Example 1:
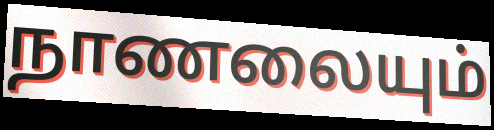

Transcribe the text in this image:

நாணலையும்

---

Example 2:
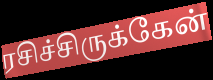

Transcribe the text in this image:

ரசிச்சிருக்கேன்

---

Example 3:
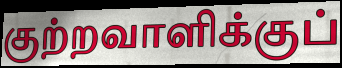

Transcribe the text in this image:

குற்றவாளிக்குப்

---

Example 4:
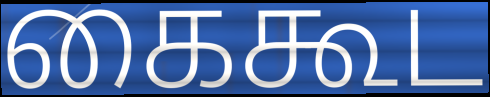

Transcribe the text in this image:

கைகூட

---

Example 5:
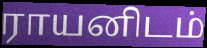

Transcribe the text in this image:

ராயனிடம்